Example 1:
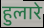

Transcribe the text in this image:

हुलारे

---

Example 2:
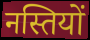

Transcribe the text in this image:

नस्तियों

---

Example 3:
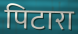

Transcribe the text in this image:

पिटारा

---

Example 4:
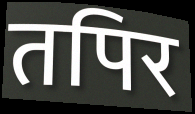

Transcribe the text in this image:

तपिर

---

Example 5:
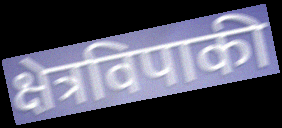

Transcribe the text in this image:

क्षेत्रविपाकी